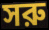
সরু